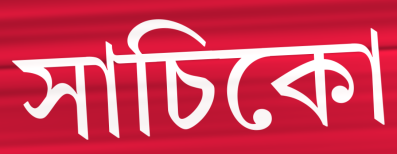
সাচিকো